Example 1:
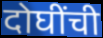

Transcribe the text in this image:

दोघींची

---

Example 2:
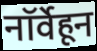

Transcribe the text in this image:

नॉर्वेहून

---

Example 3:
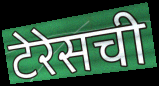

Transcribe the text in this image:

टेरेसची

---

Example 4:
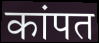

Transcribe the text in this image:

कांपत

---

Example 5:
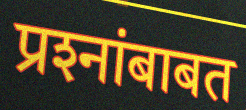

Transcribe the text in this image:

प्रश्‍नांबाबत